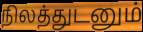
நிலத்துடனும்